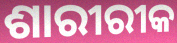
ଶାରୀରୀକ